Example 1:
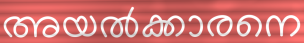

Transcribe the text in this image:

അയൽക്കാരനെ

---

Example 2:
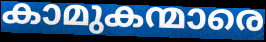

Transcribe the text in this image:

കാമുകന്മാരെ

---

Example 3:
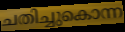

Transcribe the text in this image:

ചതിച്ചുകൊന്ന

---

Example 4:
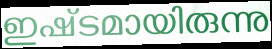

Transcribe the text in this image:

ഇഷ്‌ടമായിരുന്നു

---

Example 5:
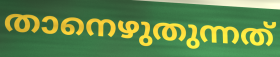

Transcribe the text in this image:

താനെഴുതുന്നത്